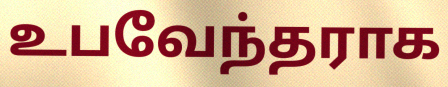
உபவேந்தராக